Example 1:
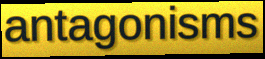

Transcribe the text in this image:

antagonisms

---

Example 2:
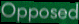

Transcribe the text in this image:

Opposed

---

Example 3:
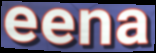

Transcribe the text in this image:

eena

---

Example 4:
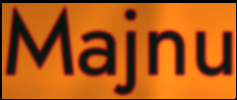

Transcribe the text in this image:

Majnu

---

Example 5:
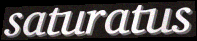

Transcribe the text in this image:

saturatus